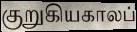
குறுகியகாலப்